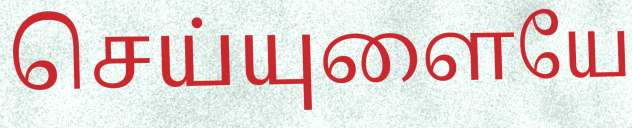
செய்யுளையே